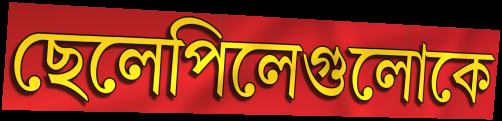
ছেলেপিলেগুলোকে